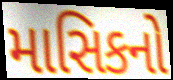
માસિકનો